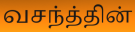
வசந்த்தின்